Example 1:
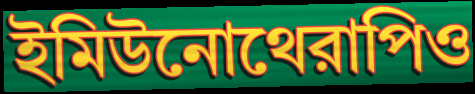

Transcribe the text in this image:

ইমিউনোথেরাপিও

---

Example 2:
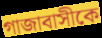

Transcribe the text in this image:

গাজাবাসীকে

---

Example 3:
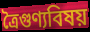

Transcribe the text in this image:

ত্রৈগুণ্যবিষয়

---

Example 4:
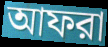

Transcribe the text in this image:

আফরা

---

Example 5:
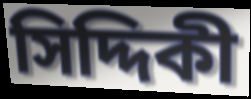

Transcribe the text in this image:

সিদ্দিকী